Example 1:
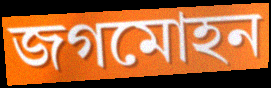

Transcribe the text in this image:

জগমোহন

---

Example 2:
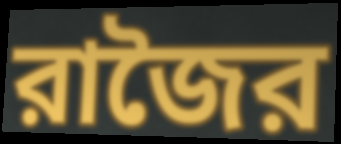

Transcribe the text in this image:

রাজৈর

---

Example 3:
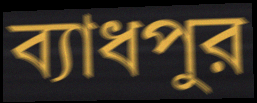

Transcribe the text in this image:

ব্যাধপুর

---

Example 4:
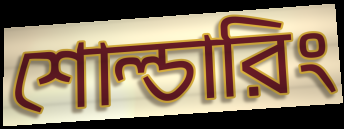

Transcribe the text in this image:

শোল্ডারিং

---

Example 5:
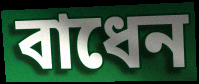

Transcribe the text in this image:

বাধেন